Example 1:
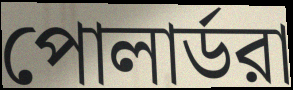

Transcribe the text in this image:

পোলার্ডরা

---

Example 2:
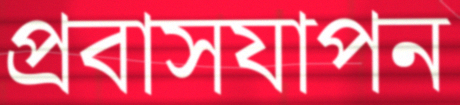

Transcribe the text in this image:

প্রবাসযাপন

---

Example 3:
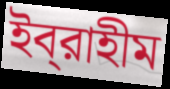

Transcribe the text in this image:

ইব্‌রাহীম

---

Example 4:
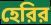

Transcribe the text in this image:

হেরির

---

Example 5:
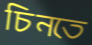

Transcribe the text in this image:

চিনতে